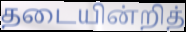
தடையின்றித்